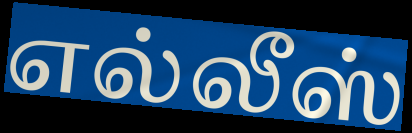
எல்லீஸ்